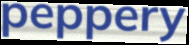
peppery